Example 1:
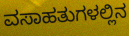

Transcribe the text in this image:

ವಸಾಹತುಗಳಲ್ಲಿನ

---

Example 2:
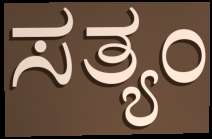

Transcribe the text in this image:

ಸತ್ಯಂ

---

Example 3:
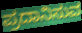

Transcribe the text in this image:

ಪ್ರದಾನಿಸುವ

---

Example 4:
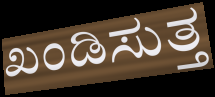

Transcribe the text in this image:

ಖಂಡಿಸುತ್ತ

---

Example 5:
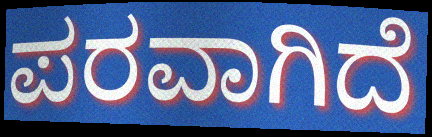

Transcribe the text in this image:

ಪರವಾಗಿದೆ